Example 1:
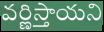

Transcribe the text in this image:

వర్ణిస్తాయని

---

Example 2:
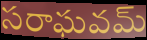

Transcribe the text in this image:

సరాఘవమ్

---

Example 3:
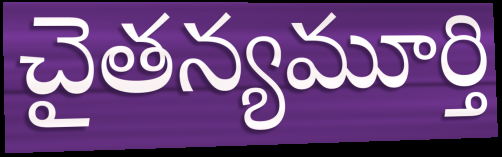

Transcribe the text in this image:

చైతన్యమూర్తి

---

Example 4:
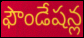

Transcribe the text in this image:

ఫౌండేషన్ల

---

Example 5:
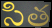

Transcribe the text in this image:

సిత